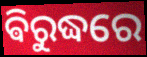
ଵିରୁଦ୍ଧରେ